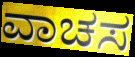
ವಾಚಸ